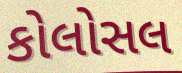
કોલોસલ